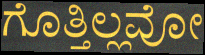
ಗೊತ್ತಿಲ್ಲವೋ